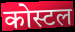
कोस्टल